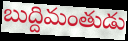
బుద్దిమంతుడు